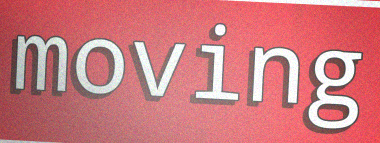
moving